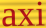
axi